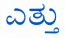
ಎತ್ತು